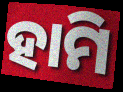
ହାମି